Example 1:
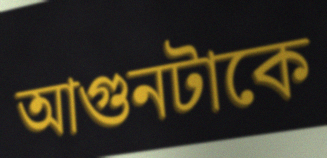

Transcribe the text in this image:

আগুনটাকে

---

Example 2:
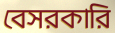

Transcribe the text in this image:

বেসরকারি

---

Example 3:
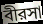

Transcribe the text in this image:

বীরসা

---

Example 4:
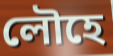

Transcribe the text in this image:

লৌহে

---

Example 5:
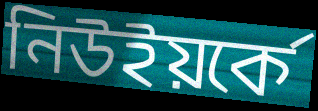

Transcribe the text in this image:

নিউইয়র্কে